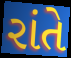
રાંતે